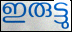
ഇരുട്ടു